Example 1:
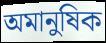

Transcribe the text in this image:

অমানুষিক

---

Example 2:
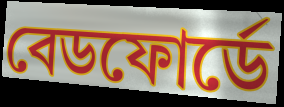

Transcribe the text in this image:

বেডফোর্ডে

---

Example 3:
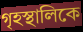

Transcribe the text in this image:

গৃহস্থালিকে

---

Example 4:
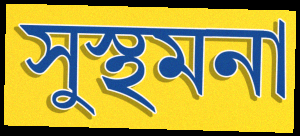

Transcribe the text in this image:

সুস্থমনা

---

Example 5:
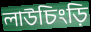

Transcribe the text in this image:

লাউচিংড়ি